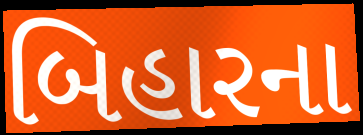
બિહારના